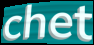
chet